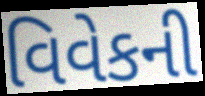
વિવેકની